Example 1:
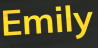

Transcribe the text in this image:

Emily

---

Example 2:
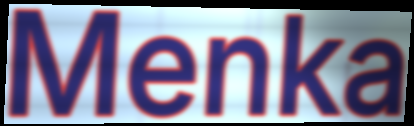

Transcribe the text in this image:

Menka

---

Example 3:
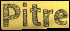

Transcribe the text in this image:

Pitre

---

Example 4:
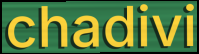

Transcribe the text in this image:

chadivi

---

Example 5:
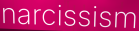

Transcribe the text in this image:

narcissism